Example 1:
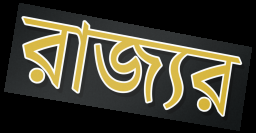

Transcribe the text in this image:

রাজ্যর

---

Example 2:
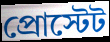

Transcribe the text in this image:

প্রোস্টেট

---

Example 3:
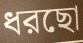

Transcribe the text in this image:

ধরছো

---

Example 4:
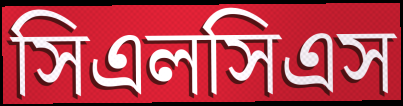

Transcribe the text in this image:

সিএলসিএস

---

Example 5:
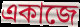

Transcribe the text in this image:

একাজে